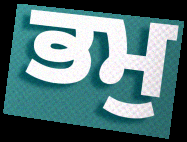
ਭਮੁ